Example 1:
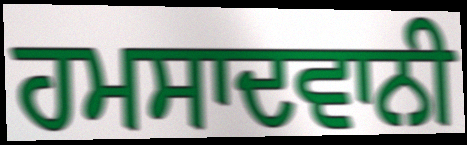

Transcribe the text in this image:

ਹਮਸਾਦਵਾਨੀ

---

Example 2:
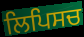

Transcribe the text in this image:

ਲਿਪਿਸਚ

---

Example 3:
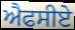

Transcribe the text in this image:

ਐਫਸੀਏ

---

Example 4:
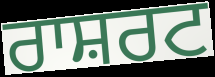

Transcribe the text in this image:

ਰਾਸ਼ਰਟ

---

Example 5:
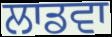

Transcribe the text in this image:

ਲਾਡਵਾ